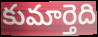
కుమార్తెది